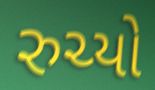
રુચ્યો